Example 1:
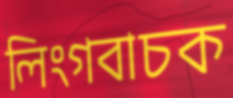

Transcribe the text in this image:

লিংগবাচক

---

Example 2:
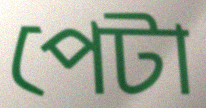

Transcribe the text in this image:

পেটা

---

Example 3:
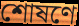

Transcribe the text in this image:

শোষণে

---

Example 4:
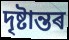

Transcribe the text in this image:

দৃষ্টান্তৰ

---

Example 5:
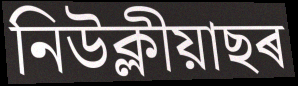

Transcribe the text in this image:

নিউক্লীয়াছৰ